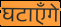
घटाएँगे